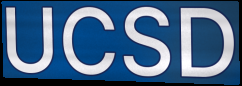
UCSD